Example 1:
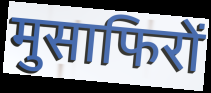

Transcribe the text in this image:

मुसाफिरों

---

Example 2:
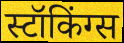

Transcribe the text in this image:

स्टॉकिंग्स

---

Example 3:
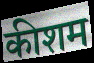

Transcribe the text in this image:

कीशम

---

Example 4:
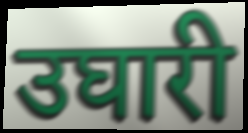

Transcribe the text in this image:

उघारी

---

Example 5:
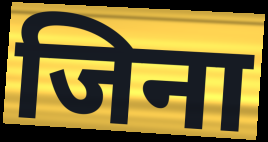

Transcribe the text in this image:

जिना